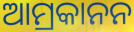
ଆମ୍ରକାନନ